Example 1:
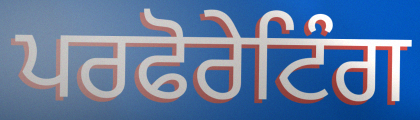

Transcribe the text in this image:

ਪਰਫੋਰੇਟਿੰਗ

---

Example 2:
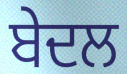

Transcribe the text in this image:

ਬੇਦਲ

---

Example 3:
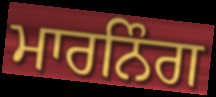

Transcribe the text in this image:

ਮਾਰਨਿੰਗ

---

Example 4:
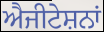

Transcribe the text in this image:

ਐਜੀਟੇਸ਼ਨਾਂ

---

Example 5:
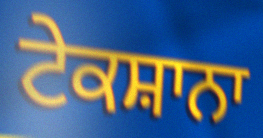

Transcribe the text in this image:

ਟੇਕਸ਼ਾਨਾ